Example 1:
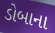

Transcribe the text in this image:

ડોબાના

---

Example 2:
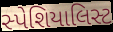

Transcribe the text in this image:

સ્પેશિયાલિસ્ટ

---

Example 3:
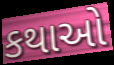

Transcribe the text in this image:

કથાઓ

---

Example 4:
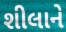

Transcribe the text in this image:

શીલાને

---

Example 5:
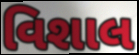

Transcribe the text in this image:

વિશાલ